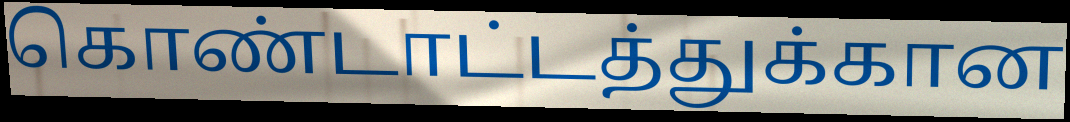
கொண்டாட்டத்துக்கான